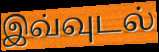
இவ்வுடல்